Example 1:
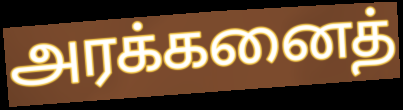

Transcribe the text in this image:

அரக்கனைத்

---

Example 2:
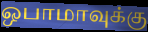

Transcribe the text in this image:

ஒபாமாவுக்கு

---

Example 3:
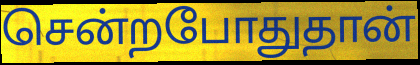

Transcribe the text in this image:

சென்றபோதுதான்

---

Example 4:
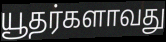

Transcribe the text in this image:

யூதர்களாவது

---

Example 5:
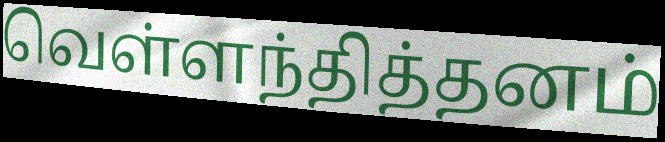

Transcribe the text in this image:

வெள்ளந்தித்தனம்